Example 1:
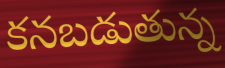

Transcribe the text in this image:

కనబడుతున్న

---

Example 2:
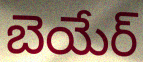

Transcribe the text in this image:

బెయేర్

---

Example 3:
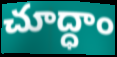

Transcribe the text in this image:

చూద్ధాం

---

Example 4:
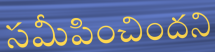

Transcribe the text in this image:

సమీపించిందని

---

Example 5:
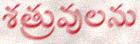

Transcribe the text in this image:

శత్రువులను